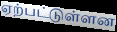
ஏற்பட்டுள்ளன